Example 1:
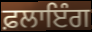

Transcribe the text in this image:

ਫ਼ਲਾਇੰਗ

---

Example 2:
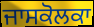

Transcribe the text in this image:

ਜਾਸਕੋਲਕਾ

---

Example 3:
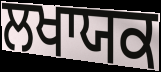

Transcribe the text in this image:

ਲਖਾਯਕ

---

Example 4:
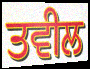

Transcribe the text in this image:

ਤਵੀਲ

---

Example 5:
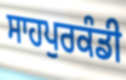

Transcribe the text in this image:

ਸਾਹਪੁਰਕੰਡੀ